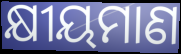
କ୍ଷୀୟମାଣ